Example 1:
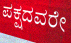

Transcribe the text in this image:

ಪಕ್ಷದವರೇ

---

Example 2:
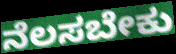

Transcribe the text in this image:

ನೆಲಸಬೇಕು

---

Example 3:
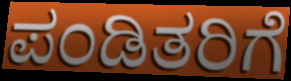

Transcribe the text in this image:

ಪಂಡಿತರಿಗೆ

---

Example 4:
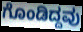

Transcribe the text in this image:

ಗೊಂಡಿದ್ದವು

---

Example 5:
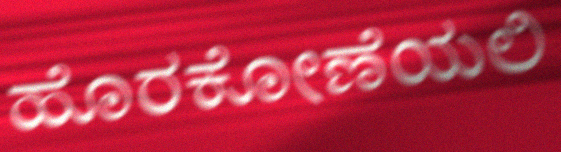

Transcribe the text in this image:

ಹೊರಕೋಣೆಯಲಿ